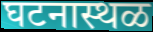
घटनास्थळ